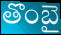
తొంబై